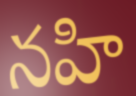
నహి